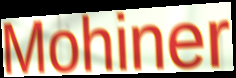
Mohiner